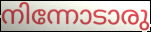
നിന്നോടാരു